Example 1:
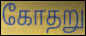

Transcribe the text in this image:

கோதறு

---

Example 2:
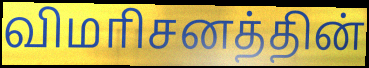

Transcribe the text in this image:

விமரிசனத்தின்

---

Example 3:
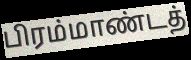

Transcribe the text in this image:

பிரம்மாண்டத்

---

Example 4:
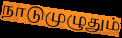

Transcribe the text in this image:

நாடுமுழுதும்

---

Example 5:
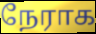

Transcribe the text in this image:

நேராக